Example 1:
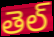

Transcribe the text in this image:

తెల్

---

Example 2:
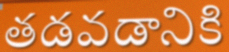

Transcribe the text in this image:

తడవడానికి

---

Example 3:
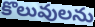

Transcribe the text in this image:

కొలువులను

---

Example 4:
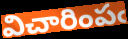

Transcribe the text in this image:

విచారింపఁ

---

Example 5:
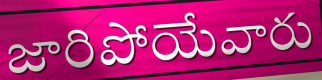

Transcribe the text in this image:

జారిపోయేవారు